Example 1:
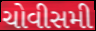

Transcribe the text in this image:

ચોવીસમી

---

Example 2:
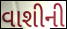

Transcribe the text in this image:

વાશીની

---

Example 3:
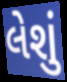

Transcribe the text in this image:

લેશું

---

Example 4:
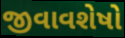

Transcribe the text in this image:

જીવાવશેષો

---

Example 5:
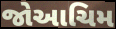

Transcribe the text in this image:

જોઆચિમ